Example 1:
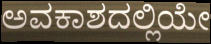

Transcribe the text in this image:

ಅವಕಾಶದಲ್ಲಿಯೇ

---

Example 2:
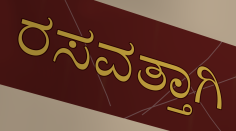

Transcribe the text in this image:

ರಸವತ್ತಾಗಿ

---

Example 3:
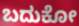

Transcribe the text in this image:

ಬದುಕೋ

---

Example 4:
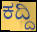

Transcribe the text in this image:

ಕದ್ದಿ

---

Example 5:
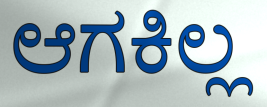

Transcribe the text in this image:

ಆಗಕಿಲ್ಲ